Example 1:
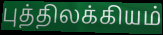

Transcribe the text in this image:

புத்திலக்கியம்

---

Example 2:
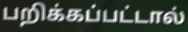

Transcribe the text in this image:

பறிக்கப்பட்டால்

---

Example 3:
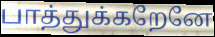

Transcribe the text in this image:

பாத்துக்கறேனே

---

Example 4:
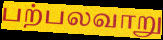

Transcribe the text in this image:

பற்பலவாறு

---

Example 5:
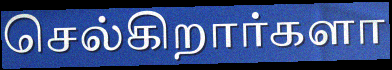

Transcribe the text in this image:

செல்கிறார்களா